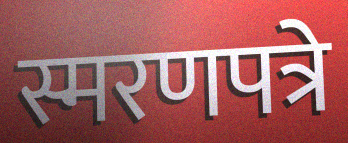
स्मरणपत्रे